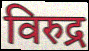
विरुद्र